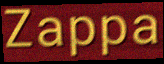
Zappa